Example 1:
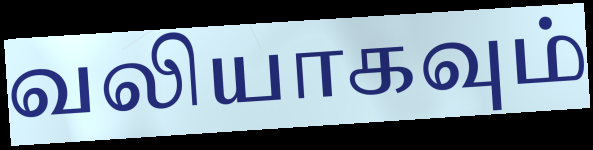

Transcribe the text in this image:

வலியாகவும்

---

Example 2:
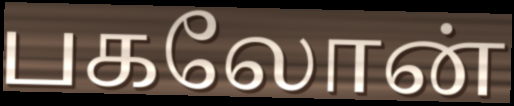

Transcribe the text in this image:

பகலோன்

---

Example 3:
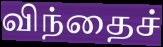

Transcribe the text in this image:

விந்தைச்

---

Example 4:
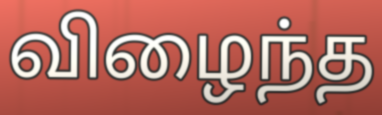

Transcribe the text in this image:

விழைந்த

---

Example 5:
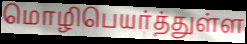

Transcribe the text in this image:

மொழிபெயர்த்துள்ள